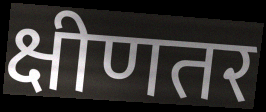
क्षीणतर